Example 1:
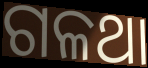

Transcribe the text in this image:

ଗଳଥା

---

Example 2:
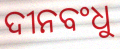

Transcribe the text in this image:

ଦୀନବଂଧୁ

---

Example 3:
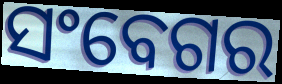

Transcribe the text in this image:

ସଂବେଗର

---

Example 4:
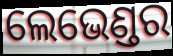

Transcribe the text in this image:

ଲେଭେଣ୍ଡର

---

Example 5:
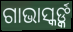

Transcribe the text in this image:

ଗାଭାସ୍କର୍ଙ୍କ